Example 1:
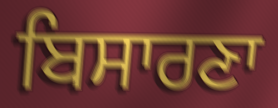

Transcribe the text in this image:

ਬਿਸਾਰਣਾ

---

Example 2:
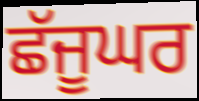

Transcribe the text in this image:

ਛੱਜੂਘਰ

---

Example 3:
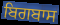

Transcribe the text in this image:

ਬਿਗਬਾਸ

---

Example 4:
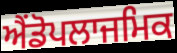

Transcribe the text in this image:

ਐਂਡੋਪਲਾਜਮਿਕ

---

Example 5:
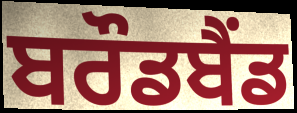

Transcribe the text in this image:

ਬਰੌਡਬੈਂਡ